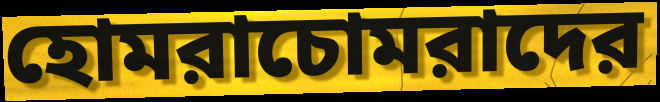
হোমরাচোমরাদের